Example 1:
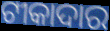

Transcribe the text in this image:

ଟୀକାଦାର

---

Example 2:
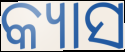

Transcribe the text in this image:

କ୍ୟାସ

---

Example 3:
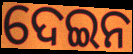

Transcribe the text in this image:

ଦେଇନ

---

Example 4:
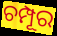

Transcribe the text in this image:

ଚମ୍ପୂର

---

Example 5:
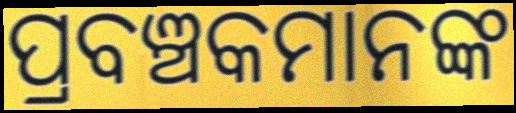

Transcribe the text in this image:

ପ୍ରବଞ୍ଚକମାନଙ୍କ